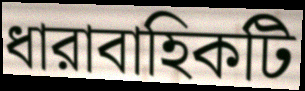
ধারাবাহিকটি